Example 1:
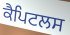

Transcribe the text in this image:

ਕੈਪਿਟਲਸ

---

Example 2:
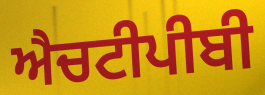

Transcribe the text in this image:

ਐਚਟੀਪੀਬੀ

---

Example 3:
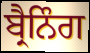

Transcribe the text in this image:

ਬ੍ਰੈਨਿੰਗ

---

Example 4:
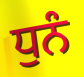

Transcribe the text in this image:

ਧੁਨੰ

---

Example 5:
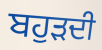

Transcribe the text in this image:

ਬਹੁੜਦੀ